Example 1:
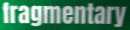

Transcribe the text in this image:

fragmentary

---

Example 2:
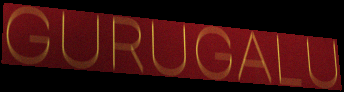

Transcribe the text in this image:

GURUGALU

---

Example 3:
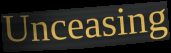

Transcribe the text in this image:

Unceasing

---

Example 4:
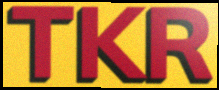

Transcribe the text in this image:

TKR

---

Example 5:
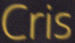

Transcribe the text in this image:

Cris